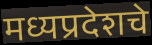
मध्यप्रदेशचे